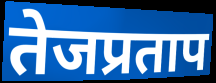
तेजप्रताप